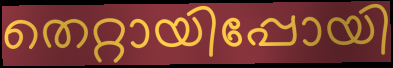
തെറ്റായിപ്പോയി